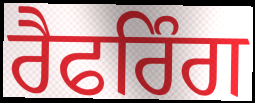
ਰੈਫਰਿੰਗ